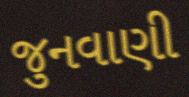
જુનવાણી